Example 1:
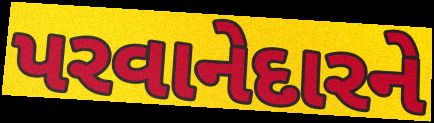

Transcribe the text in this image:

પરવાનેદારને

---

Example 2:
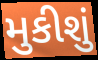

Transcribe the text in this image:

મુકીશું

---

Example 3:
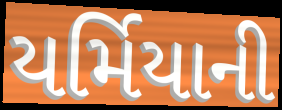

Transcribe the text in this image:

યર્મિયાની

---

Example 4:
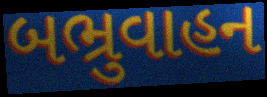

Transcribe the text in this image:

બભ્રુવાહન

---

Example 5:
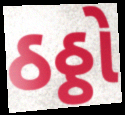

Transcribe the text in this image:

ઠઠ્ઠો